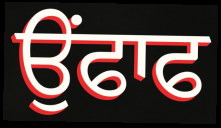
ਉੰਫਾਫ